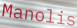
Manolis